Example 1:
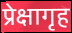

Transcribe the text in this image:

प्रेक्षागृह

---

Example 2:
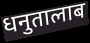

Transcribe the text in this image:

धनुतालाब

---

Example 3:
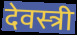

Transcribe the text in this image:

देवस्त्री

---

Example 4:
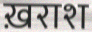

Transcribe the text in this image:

ख़राश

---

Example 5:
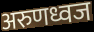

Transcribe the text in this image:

अरुणध्वज